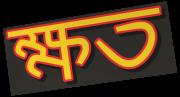
ক্ষত